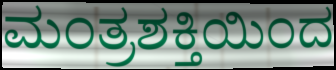
ಮಂತ್ರಶಕ್ತಿಯಿಂದ